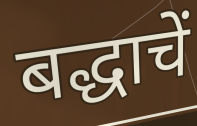
बद्धाचें